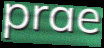
prae